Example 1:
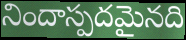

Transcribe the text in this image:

నిందాస్పదమైనది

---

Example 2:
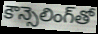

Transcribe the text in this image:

కౌన్సెలింగ్‌తో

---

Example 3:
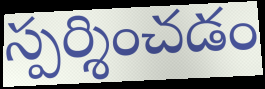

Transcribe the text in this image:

స్పర్శించడం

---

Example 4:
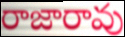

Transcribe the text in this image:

రాజారావు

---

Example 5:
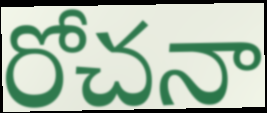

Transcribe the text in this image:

రోచనా